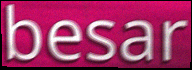
besar